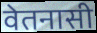
वेतनासी